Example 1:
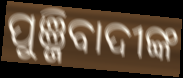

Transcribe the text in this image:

ପୁଞ୍ଜିବାଦୀଙ୍କ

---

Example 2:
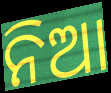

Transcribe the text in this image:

ନିଆ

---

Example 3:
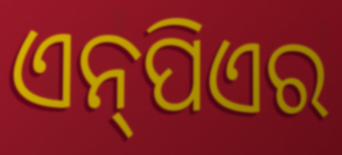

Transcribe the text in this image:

ଏନ୍‌ପିଏର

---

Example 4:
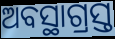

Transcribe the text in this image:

ଅବସ୍ଥାଗ୍ରସ୍ତ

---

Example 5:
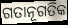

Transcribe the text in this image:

ଗତାନୂଗତିକ